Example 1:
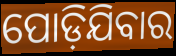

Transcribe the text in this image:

ପୋଡ଼ିଯିବାର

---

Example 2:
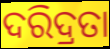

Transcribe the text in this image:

ଦରିଦ୍ରତା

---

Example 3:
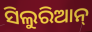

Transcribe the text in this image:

ସିଲୁରିଆନ୍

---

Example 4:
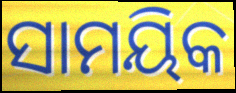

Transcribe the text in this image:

ସାମୟିକ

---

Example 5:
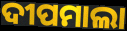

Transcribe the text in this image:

ଦୀପମାଲା